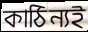
কাঠিন্যই